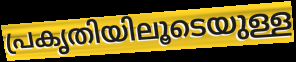
പ്രകൃതിയിലൂടെയുള്ള